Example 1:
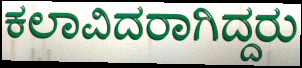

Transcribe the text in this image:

ಕಲಾವಿದರಾಗಿದ್ದರು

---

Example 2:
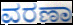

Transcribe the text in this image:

ವರಣಾ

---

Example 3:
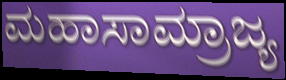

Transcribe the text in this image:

ಮಹಾಸಾಮ್ರಾಜ್ಯ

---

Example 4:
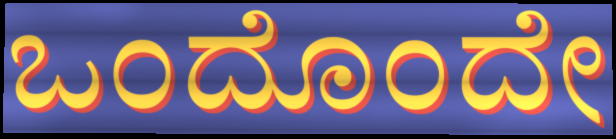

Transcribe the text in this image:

ಒಂದೊಂದೇ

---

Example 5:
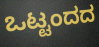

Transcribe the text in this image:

ಒಟ್ಟಂದದ